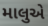
માલુએ